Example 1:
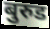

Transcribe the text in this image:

बुरुड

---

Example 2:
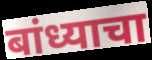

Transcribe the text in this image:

बांध्याचा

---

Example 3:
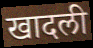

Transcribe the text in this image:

खादली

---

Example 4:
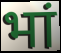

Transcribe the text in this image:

भां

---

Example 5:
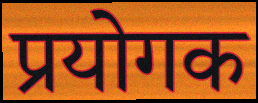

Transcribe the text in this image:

प्रयोगक